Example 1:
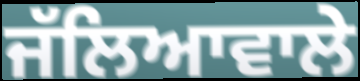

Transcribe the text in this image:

ਜੱਲਿਆਵਾਲੇ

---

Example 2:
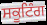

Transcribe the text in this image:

ਸਕੂਟਿੰਗ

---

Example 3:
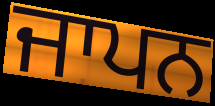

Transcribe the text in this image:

ਜਾਪਨ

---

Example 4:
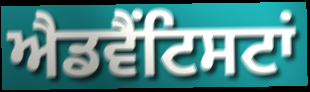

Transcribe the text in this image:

ਐਡਵੈਂਟਿਸਟਾਂ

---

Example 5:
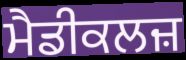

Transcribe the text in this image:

ਮੈਡੀਕਲਜ਼